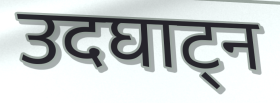
उदघाट्न